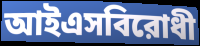
আইএসবিরোধী